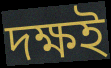
দক্ষই